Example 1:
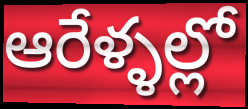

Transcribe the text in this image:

ఆరేళ్ళల్లో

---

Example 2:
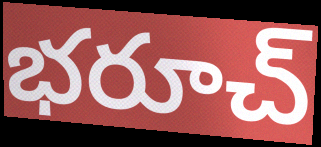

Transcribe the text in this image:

భరూచ్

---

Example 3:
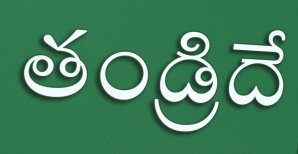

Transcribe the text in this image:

తండ్రిదే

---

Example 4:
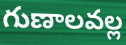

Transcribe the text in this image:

గుణాలవల్ల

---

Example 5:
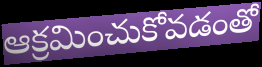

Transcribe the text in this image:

ఆక్రమించుకోవడంతో